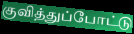
குவித்துப்போட்டு